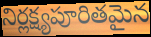
నిర్లక్ష్యపూరితమైన